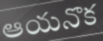
ఆయనొక